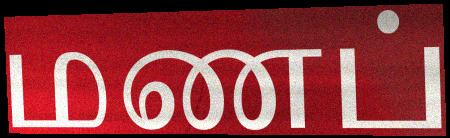
மணப்